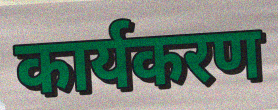
कार्यकरण